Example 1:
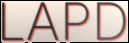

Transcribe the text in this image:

LAPD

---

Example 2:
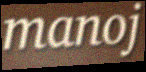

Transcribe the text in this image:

manoj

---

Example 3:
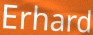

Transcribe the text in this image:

Erhard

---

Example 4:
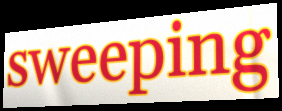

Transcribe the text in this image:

sweeping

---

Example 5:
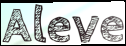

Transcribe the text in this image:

Aleve